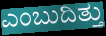
ಎಂಬುದಿತ್ತು